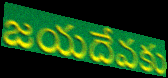
జయదేవకు